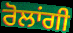
ਰੋਲਾਂਗੀ